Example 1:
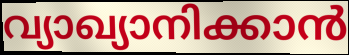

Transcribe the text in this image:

വ്യാഖ്യാനിക്കാൻ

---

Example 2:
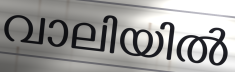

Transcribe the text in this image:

വാലിയിൽ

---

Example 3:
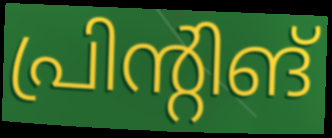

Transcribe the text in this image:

പ്രിന്റിങ്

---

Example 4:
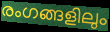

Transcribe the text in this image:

രംഗങ്ങളിലും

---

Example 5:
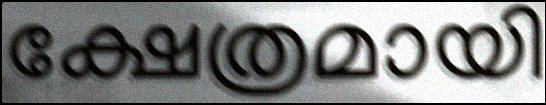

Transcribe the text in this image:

ക്ഷേത്രമായി